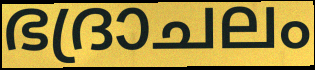
ഭദ്രാചലം